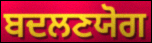
ਬਦਲਣਯੋਗ